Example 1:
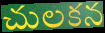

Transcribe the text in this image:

చులకన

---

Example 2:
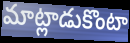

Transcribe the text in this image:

మాట్లాడుకొంటా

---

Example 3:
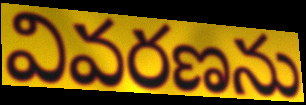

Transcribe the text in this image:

వివరణను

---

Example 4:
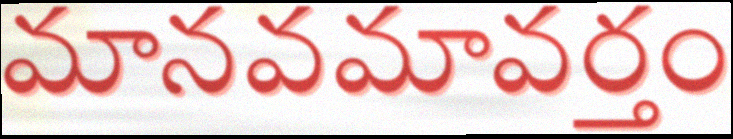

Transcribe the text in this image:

మానవమావర్తం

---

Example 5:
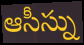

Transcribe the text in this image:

ఆసీస్ను